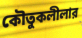
কৌতুকলীলার